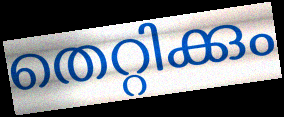
തെറ്റിക്കും